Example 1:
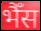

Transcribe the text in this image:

भैँस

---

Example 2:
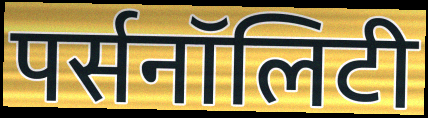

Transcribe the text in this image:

पर्सनॉलिटी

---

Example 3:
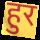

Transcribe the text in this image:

हुर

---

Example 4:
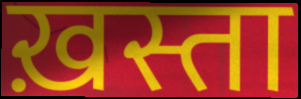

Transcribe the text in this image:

ख़स्ता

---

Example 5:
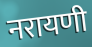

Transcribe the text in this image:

नरायणी